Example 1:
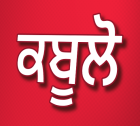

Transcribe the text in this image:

ਕਬੂਲੋ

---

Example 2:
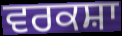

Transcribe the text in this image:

ਵਰਕਸ਼ਾ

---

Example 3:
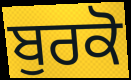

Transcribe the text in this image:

ਬੁਰਕੋ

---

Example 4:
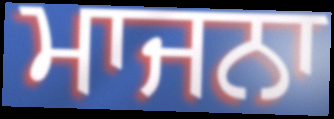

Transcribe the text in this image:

ਮਾਜਨਾ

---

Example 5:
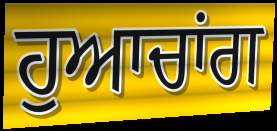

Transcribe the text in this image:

ਹੁਆਚਾਂਗ